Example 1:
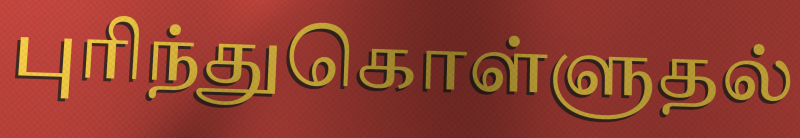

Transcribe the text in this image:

புரிந்துகொள்ளுதல்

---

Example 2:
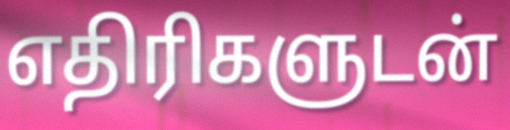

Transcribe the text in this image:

எதிரிகளுடன்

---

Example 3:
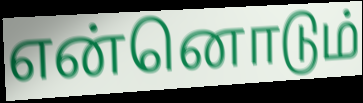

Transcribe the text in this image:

என்னொடும்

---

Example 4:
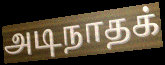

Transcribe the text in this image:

அடிநாதக்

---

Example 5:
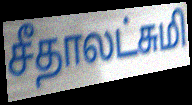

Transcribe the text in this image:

சீதாலட்சுமி